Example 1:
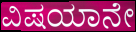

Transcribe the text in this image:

ವಿಷಯಾನೇ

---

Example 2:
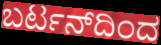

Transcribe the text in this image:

ಬರ್ಟನ್‌ದಿಂದ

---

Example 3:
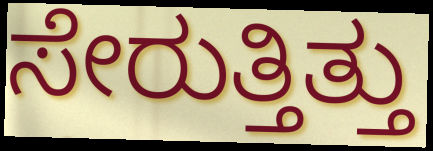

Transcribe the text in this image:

ಸೇರುತ್ತಿತ್ತು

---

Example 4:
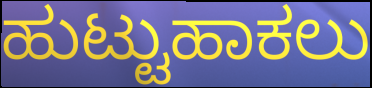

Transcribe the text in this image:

ಹುಟ್ಟುಹಾಕಲು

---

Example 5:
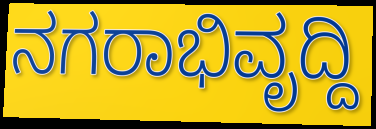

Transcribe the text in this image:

ನಗರಾಭಿವೃದ್ದಿ